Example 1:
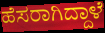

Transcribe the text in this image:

ಹೆಸರಾಗಿದ್ದಾಳೆ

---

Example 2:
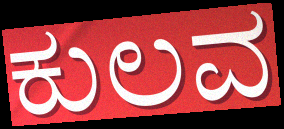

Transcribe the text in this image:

ಕುಲವ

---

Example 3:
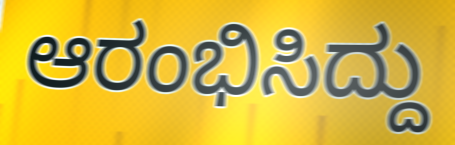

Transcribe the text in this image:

ಆರಂಭಿಸಿದ್ದು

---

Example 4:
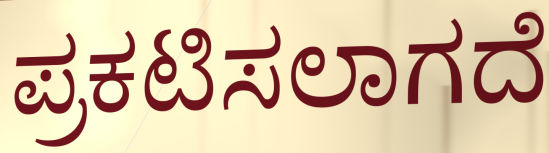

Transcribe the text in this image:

ಪ್ರಕಟಿಸಲಾಗದೆ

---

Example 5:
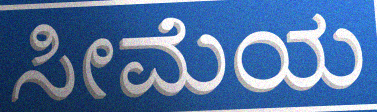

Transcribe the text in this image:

ಸೀಮೆಯ